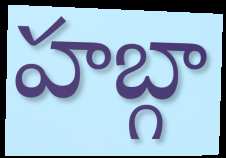
హబ్గా